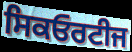
ਸਿਕਓਰਟੀਜ